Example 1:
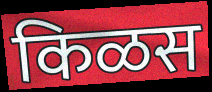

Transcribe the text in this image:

किळस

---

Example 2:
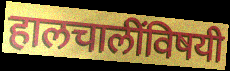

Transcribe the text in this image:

हालचालींविषयी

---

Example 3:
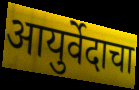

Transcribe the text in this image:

आयुर्वेदाचा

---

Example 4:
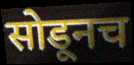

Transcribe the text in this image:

सोडूनच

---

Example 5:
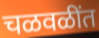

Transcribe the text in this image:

चळवळींत